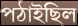
পঠাইছিল